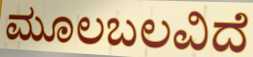
ಮೂಲಬಲವಿದೆ